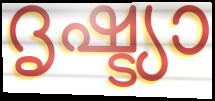
ദൃഷ്ട്യാ